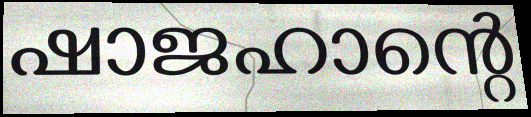
ഷാജഹാന്റെ